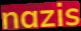
nazis